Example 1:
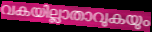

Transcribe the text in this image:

വകയില്ലാതാവുകയും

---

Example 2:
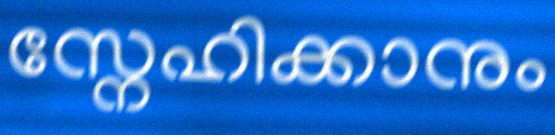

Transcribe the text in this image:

സ്നേഹിക്കാനും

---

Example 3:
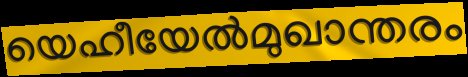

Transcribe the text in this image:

യെഹീയേൽമുഖാന്തരം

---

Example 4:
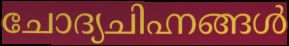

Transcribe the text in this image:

ചോദ്യചിഹ്നങ്ങൾ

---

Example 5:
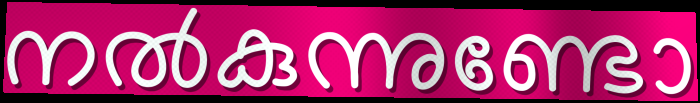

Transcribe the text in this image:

നൽകുന്നുണ്ടോ